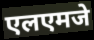
एलएमजे